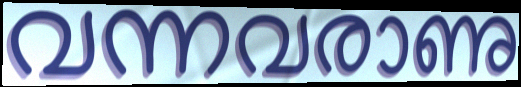
വന്നവരാണു